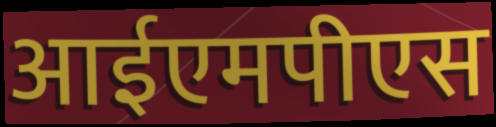
आईएमपीएस